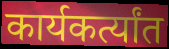
कार्यकर्त्यांत